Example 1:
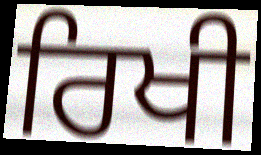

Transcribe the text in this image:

ਰਿਖੀ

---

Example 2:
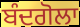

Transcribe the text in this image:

ਬੰਦਗੋਲਾ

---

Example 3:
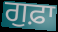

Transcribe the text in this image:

ਗੁਫ਼ਾ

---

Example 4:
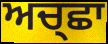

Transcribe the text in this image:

ਅਚ੍ਛਾ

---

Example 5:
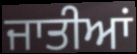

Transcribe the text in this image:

ਜਾਤੀਆਂ